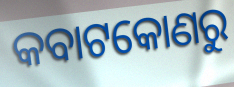
କବାଟକୋଣରୁ